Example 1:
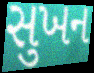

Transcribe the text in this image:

સુખન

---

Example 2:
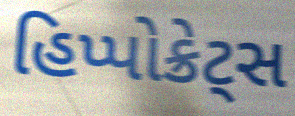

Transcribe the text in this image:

હિપ્પોક્રેટ્સ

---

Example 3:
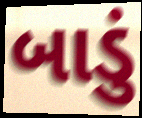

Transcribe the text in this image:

બાડું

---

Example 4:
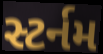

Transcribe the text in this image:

સ્ટર્નમ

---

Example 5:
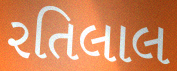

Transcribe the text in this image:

રતિલાલ